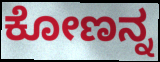
ಕೋಣನ್ನ